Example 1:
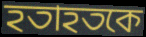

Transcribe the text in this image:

হতাহতকে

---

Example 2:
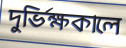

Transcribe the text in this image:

দুর্ভিক্ষকালে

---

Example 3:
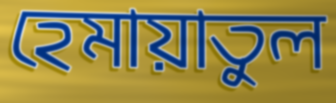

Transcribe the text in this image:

হেমায়াতুল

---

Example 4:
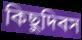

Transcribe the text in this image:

কিছুদিবস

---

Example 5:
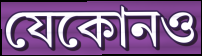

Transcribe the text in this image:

যেকোনও